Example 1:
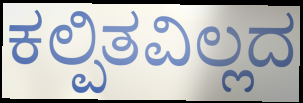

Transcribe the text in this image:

ಕಲ್ಪಿತವಿಲ್ಲದ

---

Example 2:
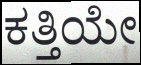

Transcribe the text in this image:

ಕತ್ತಿಯೇ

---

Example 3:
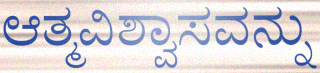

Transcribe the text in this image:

ಆತ್ಮವಿಶ್ವಾಸವನ್ನು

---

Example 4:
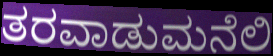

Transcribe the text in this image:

ತರವಾಡುಮನೆಲಿ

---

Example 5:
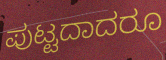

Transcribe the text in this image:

ಪುಟ್ಟದಾದರೂ